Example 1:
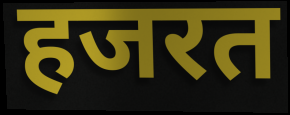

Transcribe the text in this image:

हजरत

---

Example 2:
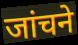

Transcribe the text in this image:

जांचने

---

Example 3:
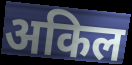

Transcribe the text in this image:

अकिल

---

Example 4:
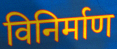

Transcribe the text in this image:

विनिर्माण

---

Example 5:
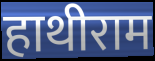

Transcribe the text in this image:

हाथीराम